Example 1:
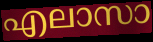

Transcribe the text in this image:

എലാസാ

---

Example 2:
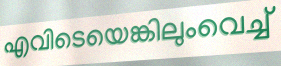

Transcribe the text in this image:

എവിടെയെങ്കിലുംവെച്ച്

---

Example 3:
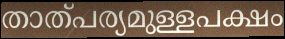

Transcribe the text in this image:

താത്പര്യമുള്ളപക്ഷം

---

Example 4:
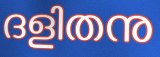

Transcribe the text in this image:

ദളിതനു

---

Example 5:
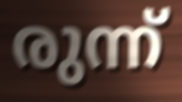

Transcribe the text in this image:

രുന്ന്